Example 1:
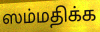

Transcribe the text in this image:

ஸம்மதிக்க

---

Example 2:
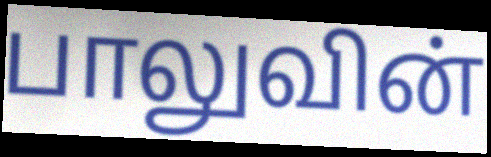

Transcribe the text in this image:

பாலுவின்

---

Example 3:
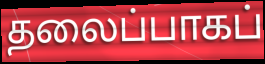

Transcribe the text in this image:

தலைப்பாகப்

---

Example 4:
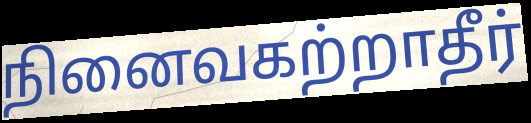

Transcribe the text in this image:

நினைவகற்றாதீர்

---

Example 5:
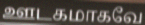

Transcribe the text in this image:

ஊடகமாகவே